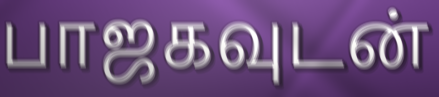
பாஜகவுடன்